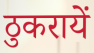
ठुकरायें